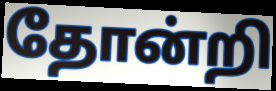
தோன்றி